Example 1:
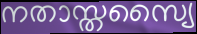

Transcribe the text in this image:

നതാസ്തസ്യൈ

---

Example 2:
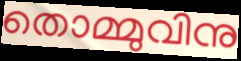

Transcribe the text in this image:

തൊമ്മുവിനു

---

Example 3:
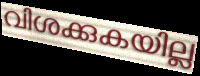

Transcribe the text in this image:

വിശക്കുകയില്ല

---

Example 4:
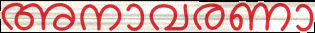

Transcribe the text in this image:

അനാവരണാ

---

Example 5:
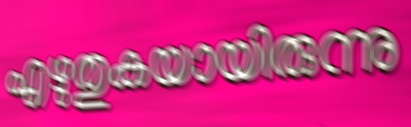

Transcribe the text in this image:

എഴുതുകയായിരുന്നു